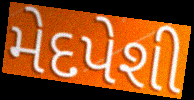
મેદપેશી